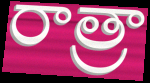
రాత్రా